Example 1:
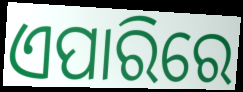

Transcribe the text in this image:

ଏପାରିରେ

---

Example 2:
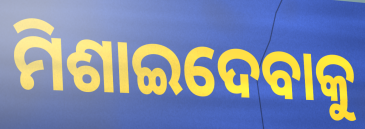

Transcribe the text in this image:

ମିଶାଇଦେବାକୁ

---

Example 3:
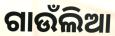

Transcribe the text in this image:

ଗାଉଁଲିଆ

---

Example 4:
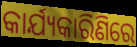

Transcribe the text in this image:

କାର୍ଯ୍ୟକାରିଣିରେ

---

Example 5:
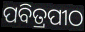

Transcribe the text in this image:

ପବିତ୍ରପୀଠ